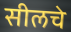
सीलचे